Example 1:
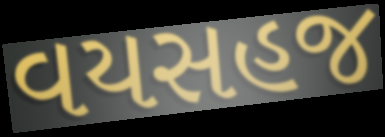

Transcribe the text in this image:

વયસહજ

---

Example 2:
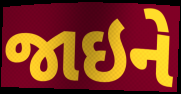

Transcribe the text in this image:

જાઇને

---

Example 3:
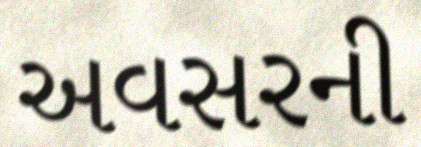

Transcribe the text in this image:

અવસરની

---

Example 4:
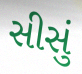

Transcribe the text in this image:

સીસું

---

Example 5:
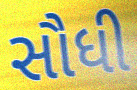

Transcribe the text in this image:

સૌધી